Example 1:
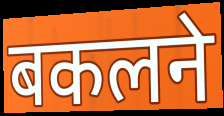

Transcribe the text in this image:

बकलने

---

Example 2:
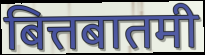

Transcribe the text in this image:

बित्तबातमी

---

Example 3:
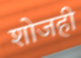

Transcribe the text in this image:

शोजही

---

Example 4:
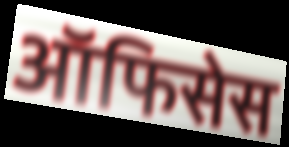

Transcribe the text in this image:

ऑफिसेस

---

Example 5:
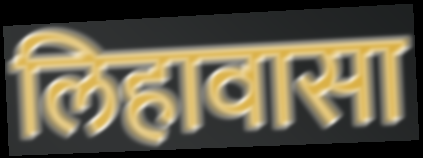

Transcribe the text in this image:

लिहावासा